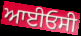
ਆਈਓਸੀ